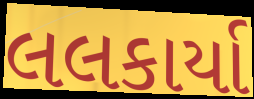
લલકાર્યા